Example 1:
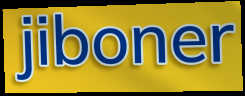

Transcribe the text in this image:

jiboner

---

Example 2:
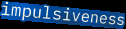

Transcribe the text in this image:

impulsiveness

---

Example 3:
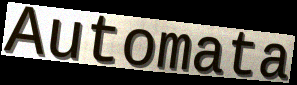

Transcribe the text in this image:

Automata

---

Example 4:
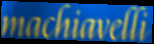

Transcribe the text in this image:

machiavelli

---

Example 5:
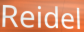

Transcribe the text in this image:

Reidel